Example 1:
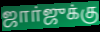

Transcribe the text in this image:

ஜார்ஜுக்கு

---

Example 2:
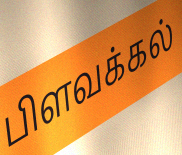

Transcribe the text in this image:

பிளவக்கல்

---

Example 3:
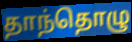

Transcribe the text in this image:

தாந்தொழு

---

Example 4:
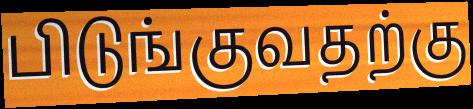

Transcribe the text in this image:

பிடுங்குவதற்கு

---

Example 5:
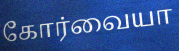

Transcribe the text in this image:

கோர்வையா